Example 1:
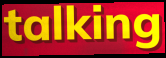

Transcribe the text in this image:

talking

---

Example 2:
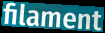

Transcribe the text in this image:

filament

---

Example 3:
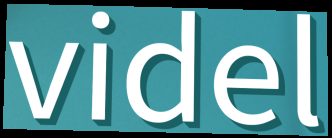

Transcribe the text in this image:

videl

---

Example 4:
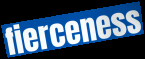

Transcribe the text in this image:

fierceness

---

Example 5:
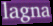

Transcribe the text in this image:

lagna